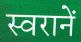
स्वरानें